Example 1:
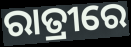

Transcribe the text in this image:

ରାତ୍ରୀରେ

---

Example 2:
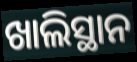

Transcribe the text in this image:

ଖାଲିସ୍ଥାନ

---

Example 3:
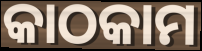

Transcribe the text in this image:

କାଠକାମ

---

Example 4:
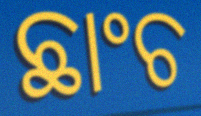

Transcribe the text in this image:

ଛାଂଚ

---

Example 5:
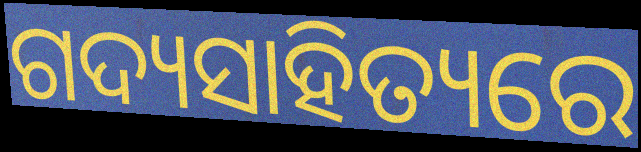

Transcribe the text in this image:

ଗଦ୍ୟସାହିତ୍ୟରେ